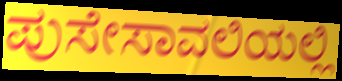
ಪುಸೇಸಾವಲಿಯಲ್ಲಿ